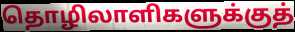
தொழிலாளிகளுக்குத்